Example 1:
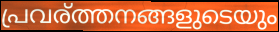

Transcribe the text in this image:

പ്രവര്ത്തനങ്ങളുടെയും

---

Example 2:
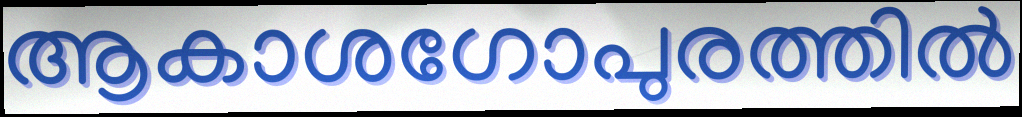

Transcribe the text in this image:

ആകാശഗോപുരത്തിൽ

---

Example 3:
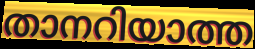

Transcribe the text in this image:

താനറിയാത്ത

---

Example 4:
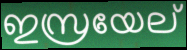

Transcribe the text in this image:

ഇസ്രയേല്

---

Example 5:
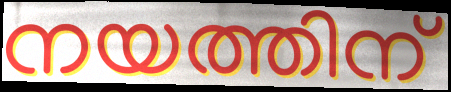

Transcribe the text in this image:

നയത്തിന്